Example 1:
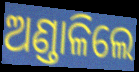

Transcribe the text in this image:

ଅଣ୍ଡାଳିଲେ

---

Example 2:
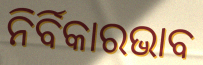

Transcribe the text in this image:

ନିର୍ବିକାରଭାବ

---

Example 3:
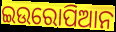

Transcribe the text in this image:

ଇଉରୋପିଆନ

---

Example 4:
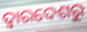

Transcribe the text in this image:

ଦ୍ଵାରଦେଶରୁ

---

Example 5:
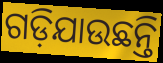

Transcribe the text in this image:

ଗଡ଼ିଯାଉଛନ୍ତି